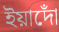
ইয়াদোঁ